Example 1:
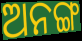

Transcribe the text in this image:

ଅନଙ୍ଗ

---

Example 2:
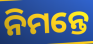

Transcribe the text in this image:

ନିମନ୍ତେ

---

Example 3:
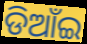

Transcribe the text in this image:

ଡିଆଁଇ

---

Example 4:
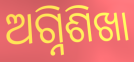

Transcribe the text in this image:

ଅଗ୍ନିଶିଖା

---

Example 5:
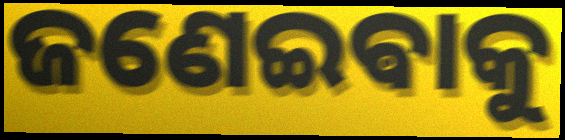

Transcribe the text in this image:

ଜଣେଇଵାକୁ